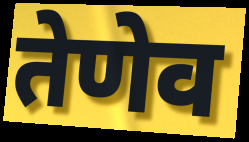
तेणेव